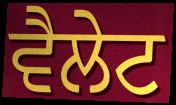
ਵੈਲੇਟ